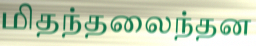
மிதந்தலைந்தன